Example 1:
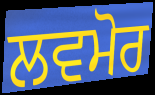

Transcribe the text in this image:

ਲਵਮੋਰ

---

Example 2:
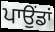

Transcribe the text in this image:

ਪਾਉਂਡਾਂ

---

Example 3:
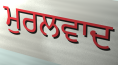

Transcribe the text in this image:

ਮੁਰਲਵਾਦ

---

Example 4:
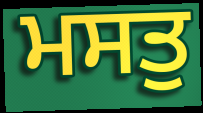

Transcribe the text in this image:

ਮਸਤੁ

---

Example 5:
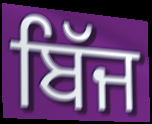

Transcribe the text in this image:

ਬਿੱਜ